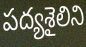
పద్యశైలిని